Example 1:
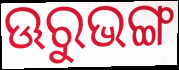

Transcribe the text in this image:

ଊରୁଭଙ୍ଗ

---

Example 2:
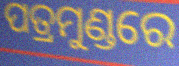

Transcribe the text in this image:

ପତ୍ରମୁଣ୍ଡରେ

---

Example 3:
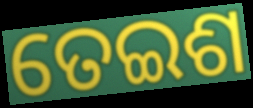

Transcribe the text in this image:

ତେଇଶ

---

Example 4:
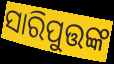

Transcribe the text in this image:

ସାରିପୁତ୍ତଙ୍କ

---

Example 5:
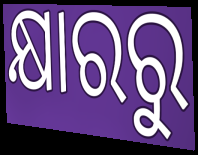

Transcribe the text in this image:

କ୍ଷାରରୁ